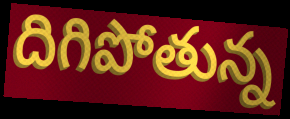
దిగిపోతున్న